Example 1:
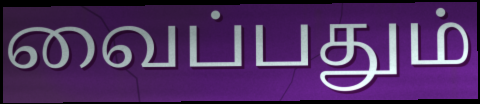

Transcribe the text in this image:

வைப்பதும்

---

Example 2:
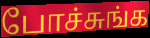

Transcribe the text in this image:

போச்சுங்க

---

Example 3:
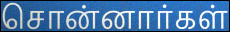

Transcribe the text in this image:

சொன்னார்கள்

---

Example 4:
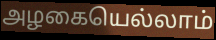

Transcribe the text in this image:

அழகையெல்லாம்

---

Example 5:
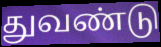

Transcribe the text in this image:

துவண்டு